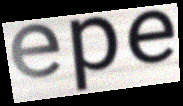
epe